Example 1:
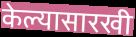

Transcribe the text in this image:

केल्यासारखी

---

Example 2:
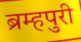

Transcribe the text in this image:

ब्रम्हपुरी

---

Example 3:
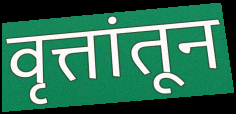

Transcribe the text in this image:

वृत्तांतून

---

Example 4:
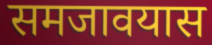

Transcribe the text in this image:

समजावयास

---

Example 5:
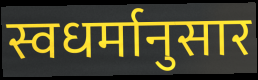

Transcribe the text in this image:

स्वधर्मानुसार